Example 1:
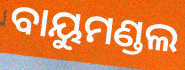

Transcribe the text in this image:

ବାୟୁମଣ୍ଡଲ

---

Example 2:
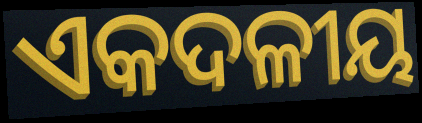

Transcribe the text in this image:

ଏକଦଳୀୟ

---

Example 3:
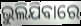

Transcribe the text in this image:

ଭୁଲିଯିବାରେ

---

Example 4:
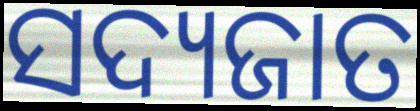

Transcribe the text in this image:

ସଦ୍ୟଜାତ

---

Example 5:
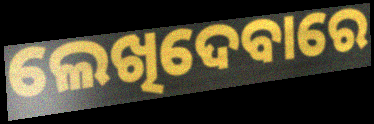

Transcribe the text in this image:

ଲେଖିଦେବାରେ